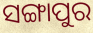
ସଙ୍ଗାପୁର